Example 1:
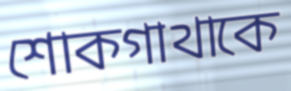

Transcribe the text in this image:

শোকগাথাকে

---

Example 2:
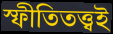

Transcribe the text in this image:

স্ফীতিতত্ত্বই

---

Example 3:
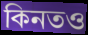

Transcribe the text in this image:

কিনতও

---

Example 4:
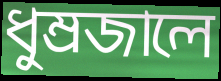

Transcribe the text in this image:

ধুম্রজালে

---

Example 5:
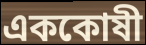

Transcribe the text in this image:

এককোষী